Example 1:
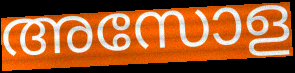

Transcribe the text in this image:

അസോള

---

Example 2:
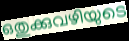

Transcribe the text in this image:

ഒതുക്കുവഴിയുടെ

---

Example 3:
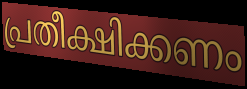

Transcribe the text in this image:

പ്രതീക്ഷിക്കണം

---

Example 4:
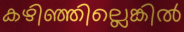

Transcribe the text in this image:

കഴിഞ്ഞില്ലെങ്കിൽ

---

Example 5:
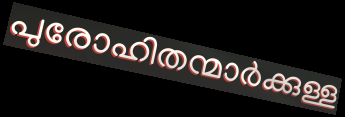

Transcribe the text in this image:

പുരോഹിതന്മാർക്കുള്ള